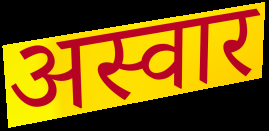
अस्वार